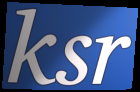
ksr